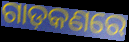
ଗାଡ଼କଣରେ